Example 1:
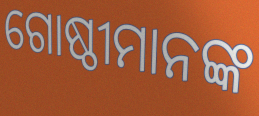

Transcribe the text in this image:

ଗୋଷ୍ଠୀମାନଙ୍କ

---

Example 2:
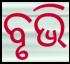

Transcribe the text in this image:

ବୃଭି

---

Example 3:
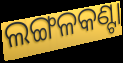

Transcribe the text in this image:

ଲଙ୍ଗଳକଣ୍ଟା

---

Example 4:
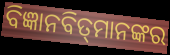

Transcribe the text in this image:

ବିଜ୍ଞାନବିତ୍‌ମାନଙ୍କର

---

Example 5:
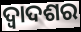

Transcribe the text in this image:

ଦ୍ୱାଦଶର